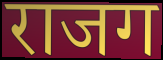
राजग